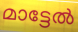
മാട്ടേൽ